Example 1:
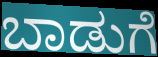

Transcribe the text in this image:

ಬಾಡುಗೆ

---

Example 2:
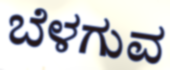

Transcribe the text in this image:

ಬೆಳಗುವ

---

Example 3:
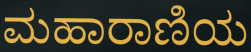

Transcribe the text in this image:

ಮಹಾರಾಣಿಯ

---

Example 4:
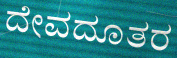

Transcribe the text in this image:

ದೇವದೂತರ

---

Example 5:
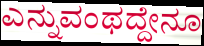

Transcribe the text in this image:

ಎನ್ನುವಂಥದ್ದೇನೂ